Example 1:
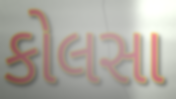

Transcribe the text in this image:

કોલસા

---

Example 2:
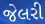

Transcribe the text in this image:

જેલરી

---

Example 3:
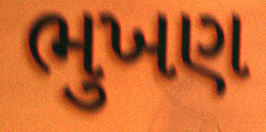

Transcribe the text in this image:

ભુખણ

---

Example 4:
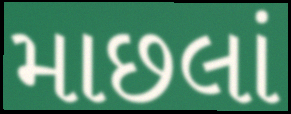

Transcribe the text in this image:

માછલાં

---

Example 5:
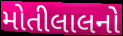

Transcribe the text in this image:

મોતીલાલનો